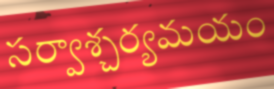
సర్వాశ్చర్యమయం